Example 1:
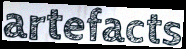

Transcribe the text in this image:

artefacts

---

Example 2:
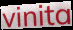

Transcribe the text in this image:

vinita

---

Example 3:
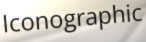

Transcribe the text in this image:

Iconographic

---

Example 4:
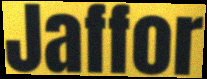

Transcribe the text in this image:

Jaffor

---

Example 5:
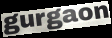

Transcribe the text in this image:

gurgaon